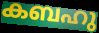
കബഹു